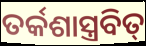
ତର୍କଶାସ୍ତ୍ରବିତ୍